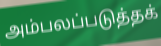
அம்பலப்படுத்தக்